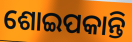
ଶୋଇପକାନ୍ତି